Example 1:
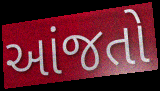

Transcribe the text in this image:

આંજતો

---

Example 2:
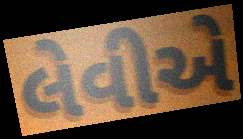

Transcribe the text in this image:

લેવીએ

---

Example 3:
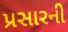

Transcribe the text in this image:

પ્રસારની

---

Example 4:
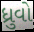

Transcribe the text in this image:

ધ્રુવો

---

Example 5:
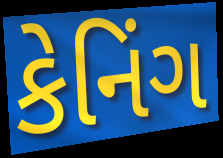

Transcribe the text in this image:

કેનિંગ